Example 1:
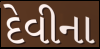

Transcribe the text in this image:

દેવીના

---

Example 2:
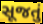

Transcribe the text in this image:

સૂજતું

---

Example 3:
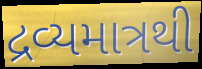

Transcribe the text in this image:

દ્રવ્યમાત્રથી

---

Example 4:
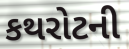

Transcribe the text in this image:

કથરોટની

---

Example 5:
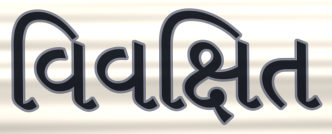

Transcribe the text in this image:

વિવક્ષિત